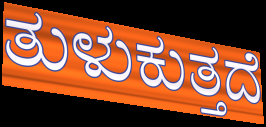
ತುಳುಕುತ್ತದೆ